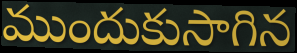
ముందుకుసాగిన